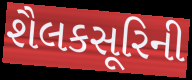
શૈલકસૂરિની